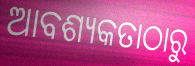
ଆବଶ୍ୟକତାଠାରୁ